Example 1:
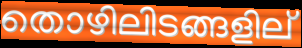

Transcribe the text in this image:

തൊഴിലിടങ്ങളില്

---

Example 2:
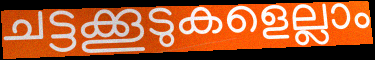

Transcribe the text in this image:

ചട്ടക്കൂടുകളെല്ലാം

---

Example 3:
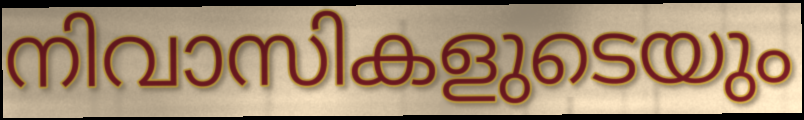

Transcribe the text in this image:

നിവാസികളുടെയും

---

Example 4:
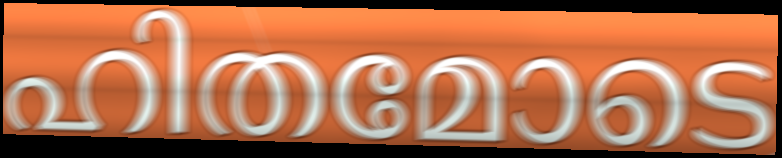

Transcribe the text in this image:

ഹിതമോടെ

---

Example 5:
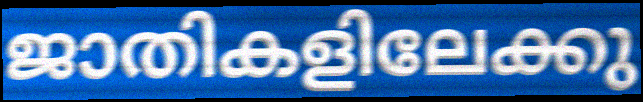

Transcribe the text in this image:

ജാതികളിലേക്കു